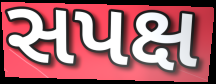
સપક્ષ